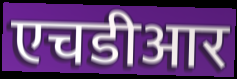
एचडीआर